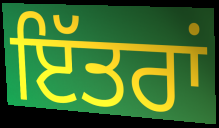
ਇੱਤਰਾਂ